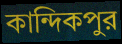
কান্দিকপুর